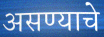
असण्याचे